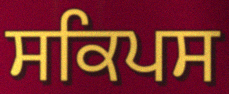
ਸਕਿਪਸ